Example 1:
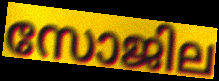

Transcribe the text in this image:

സോജില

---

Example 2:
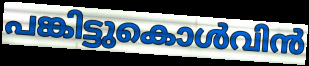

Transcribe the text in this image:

പങ്കിട്ടുകൊൾവിൻ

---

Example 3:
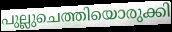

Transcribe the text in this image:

പുല്ലുചെത്തിയൊരുക്കി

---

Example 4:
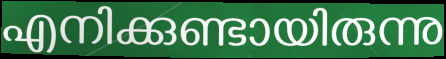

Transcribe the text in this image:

എനിക്കുണ്ടായിരുന്നു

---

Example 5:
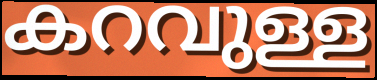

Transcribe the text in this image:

കറവുള്ള